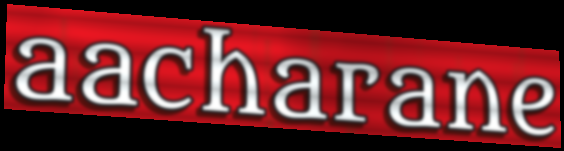
aacharane